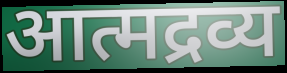
आत्मद्रव्य